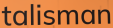
talisman